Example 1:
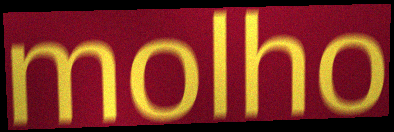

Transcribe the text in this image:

molho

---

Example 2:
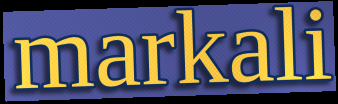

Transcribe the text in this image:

markali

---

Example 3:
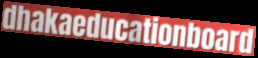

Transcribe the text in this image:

dhakaeducationboard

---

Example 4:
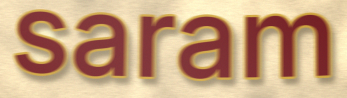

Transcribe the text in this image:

saram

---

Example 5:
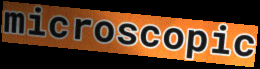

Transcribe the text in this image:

microscopic